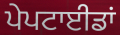
ਪੇਪਟਾਈਡਾਂ